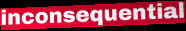
inconsequential